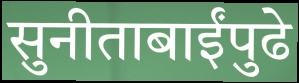
सुनीताबाईंपुढे